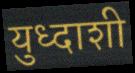
युध्दाशी